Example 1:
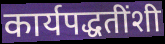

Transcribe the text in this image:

कार्यपद्धतींशी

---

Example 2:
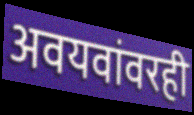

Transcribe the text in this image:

अवयवांवरही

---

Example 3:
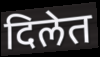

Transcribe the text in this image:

दिलेत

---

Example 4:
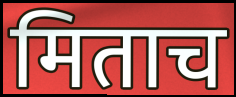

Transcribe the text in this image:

मिताच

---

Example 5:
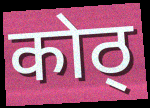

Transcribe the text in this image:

कोठ्